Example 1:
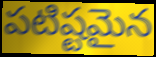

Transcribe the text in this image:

పటిష్టమైన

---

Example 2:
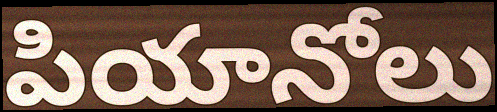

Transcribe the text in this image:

పియానోలు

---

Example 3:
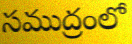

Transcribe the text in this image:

సముద్రంలో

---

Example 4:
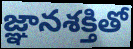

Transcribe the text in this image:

జ్ఞానశక్తితో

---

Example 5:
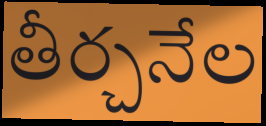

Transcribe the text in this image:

తీర్చనేల